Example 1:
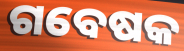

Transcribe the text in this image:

ଗବେଷକ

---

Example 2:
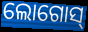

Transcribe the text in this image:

ଲୋଗୋସ୍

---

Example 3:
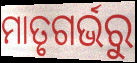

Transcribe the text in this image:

ମାତୃଗର୍ଭରୁ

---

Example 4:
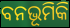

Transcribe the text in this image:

ବନଭୂମିକି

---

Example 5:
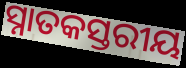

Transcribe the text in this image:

ସ୍ନାତକସ୍ତରୀୟ